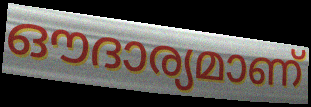
ഔദാര്യമാണ്